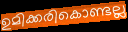
ഉമിക്കരികൊണ്ടല്ല